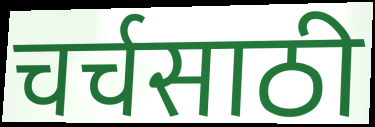
चर्चसाठी